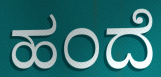
ಹಂದೆ